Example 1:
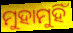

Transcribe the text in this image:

ମୁହାମୁହିଁ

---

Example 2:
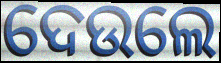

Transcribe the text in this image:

ଦେଉଲେ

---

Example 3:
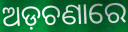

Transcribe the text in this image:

ଅଡ଼ଚଣାରେ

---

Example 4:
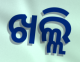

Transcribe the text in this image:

ଖଲ୍ଲି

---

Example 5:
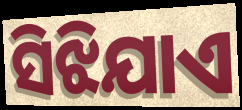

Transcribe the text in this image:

ସିଝିଯାଏ